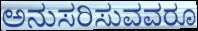
ಅನುಸರಿಸುವವರೂ